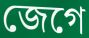
জেগে